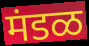
मंडळ